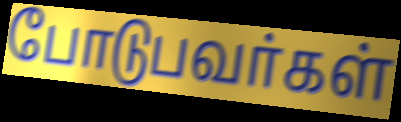
போடுபவர்கள்